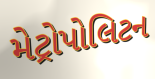
મેટ્રોપોલિટન